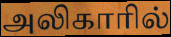
அலிகாரில்